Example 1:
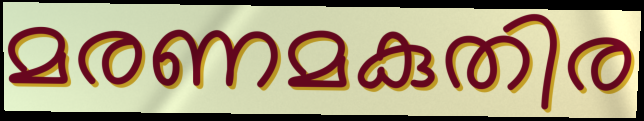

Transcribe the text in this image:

മരണമകുതിര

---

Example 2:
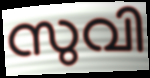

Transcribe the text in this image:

സുവി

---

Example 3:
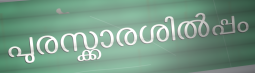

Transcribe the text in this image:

പുരസ്ക്കാരശിൽപ്പം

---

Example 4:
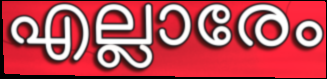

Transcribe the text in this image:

എല്ലാരേം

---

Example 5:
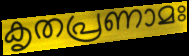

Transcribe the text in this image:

കൃതപ്രണാമഃ